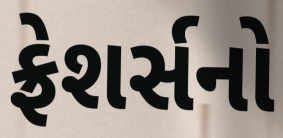
ફ્રેશર્સનો